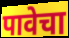
पावेचा